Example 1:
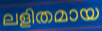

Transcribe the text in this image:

ലളിതമായ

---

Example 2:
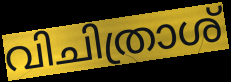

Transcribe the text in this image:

വിചിത്രാശ്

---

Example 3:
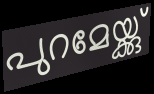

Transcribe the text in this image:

പുറമേയ്ക്കു്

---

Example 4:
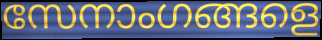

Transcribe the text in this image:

സേനാംഗങ്ങളെ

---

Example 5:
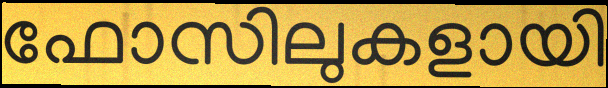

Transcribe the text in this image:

ഫോസിലുകളായി